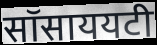
सॉसाययटी